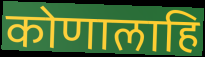
कोणालाहि